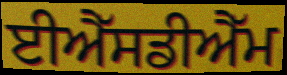
ਈਐੱਸਡੀਐੱਮ